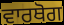
ਵਾਰਥੋਗ